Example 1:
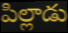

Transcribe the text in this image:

పిల్లాడు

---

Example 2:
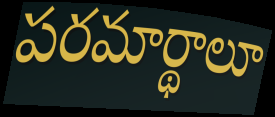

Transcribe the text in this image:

పరమార్థాలూ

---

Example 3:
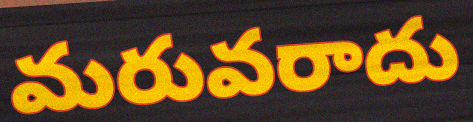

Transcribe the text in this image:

మరువరాదు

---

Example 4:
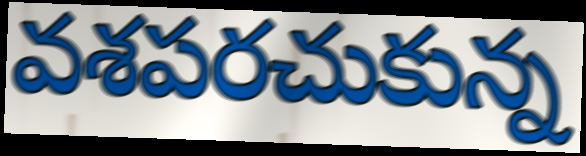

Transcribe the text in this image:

వశపరచుకున్న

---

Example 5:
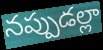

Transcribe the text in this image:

నప్పుడల్లా